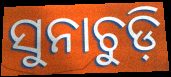
ସୁନାଚୁଡ଼ି